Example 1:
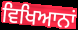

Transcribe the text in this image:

ਵਿਖਿਆਨਾਂ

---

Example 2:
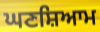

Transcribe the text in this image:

ਘਣਸ਼ਿਆਮ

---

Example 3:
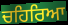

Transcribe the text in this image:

ਚਹਿਰਿਆ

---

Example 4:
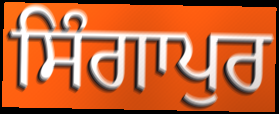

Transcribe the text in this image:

ਸਿੰਗਾਪੁਰ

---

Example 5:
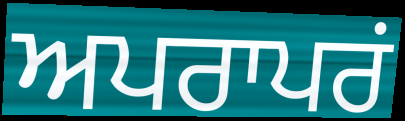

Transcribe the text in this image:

ਅਪਰਾਪਰਂ